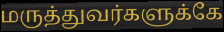
மருத்துவர்களுக்கே